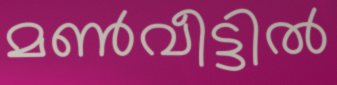
മൺവീട്ടിൽ